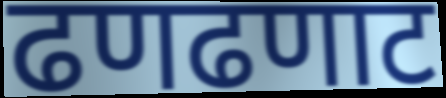
ढणढणाट